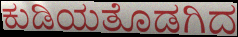
ಕುಡಿಯತೊಡಗಿದ